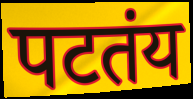
पटतंय